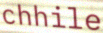
chhile